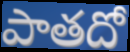
పాతదో